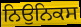
ਨਿਉਨਿਕਸ